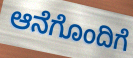
ಆನೆಗೊಂದಿಗೆ